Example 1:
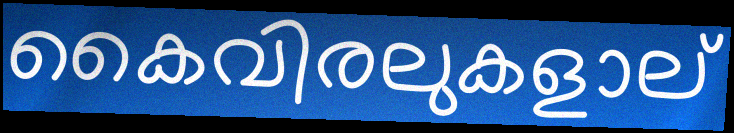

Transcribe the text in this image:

കൈവിരലുകളാല്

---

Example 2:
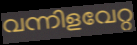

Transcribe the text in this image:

വന്നിളവേറ്റ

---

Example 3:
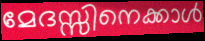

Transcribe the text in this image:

മേദസ്സിനെക്കാൾ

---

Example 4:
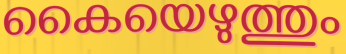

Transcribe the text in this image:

കൈയെഴുത്തും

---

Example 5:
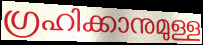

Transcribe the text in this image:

ഗ്രഹിക്കാനുമുള്ള